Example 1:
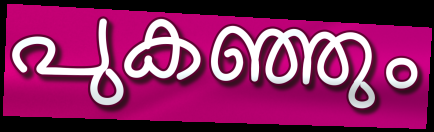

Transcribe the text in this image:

പുകഞ്ഞും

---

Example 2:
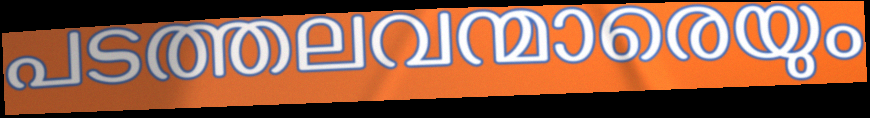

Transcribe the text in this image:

പടത്തലവന്മാരെയും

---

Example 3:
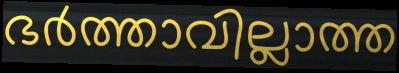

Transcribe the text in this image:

ഭർത്താവില്ലാത്ത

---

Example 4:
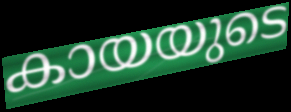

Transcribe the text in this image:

കായയുടെ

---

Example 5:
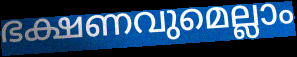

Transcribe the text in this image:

ഭക്ഷണവുമെല്ലാം